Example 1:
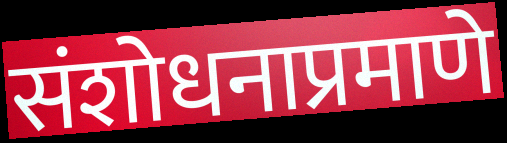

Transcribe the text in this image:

संशोधनाप्रमाणे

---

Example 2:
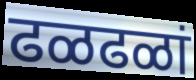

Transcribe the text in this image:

ढळढळां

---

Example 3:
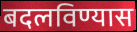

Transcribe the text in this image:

बदलविण्यास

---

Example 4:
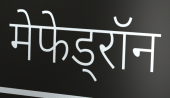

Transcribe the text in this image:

मेफेड्रॉन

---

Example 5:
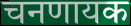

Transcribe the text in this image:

चनणायक